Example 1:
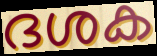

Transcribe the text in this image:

ദശക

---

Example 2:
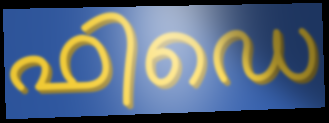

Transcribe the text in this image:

ഫിഡെ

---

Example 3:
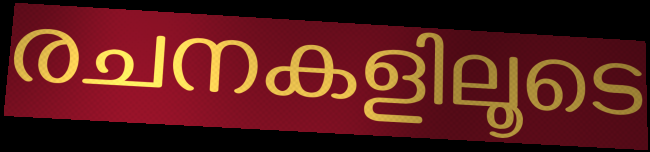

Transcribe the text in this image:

രചനകളിലൂടെ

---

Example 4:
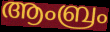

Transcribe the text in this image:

ആംബ്രം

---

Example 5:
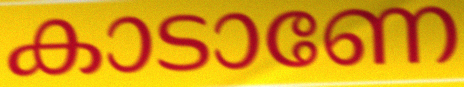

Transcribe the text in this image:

കാടാണേ